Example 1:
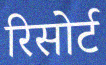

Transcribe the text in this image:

रिसोर्ट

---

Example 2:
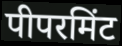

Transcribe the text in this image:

पीपरमिंट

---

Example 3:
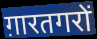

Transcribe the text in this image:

ग़ारतगरों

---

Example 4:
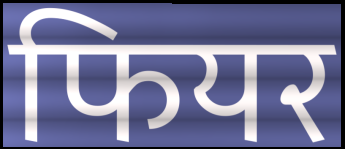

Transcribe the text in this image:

फियर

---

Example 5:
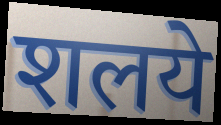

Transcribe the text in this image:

शलये